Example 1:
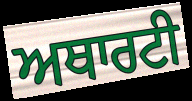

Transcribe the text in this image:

ਅਥਾਰਟੀ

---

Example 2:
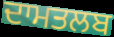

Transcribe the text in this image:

ਦਾਮਤਲਬ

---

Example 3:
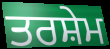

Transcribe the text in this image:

ਤਰਸ਼ੇਮ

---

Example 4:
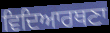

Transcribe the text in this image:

ਵਿਦਿਆਰਥਣਾ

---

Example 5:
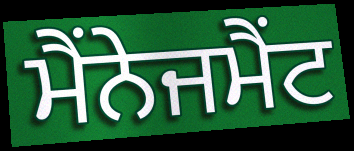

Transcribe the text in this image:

ਮੈਂਨੇਜਮੈਂਟ